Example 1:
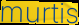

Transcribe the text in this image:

murtis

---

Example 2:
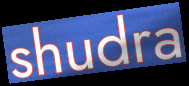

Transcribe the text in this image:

shudra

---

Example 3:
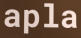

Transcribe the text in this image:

apla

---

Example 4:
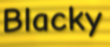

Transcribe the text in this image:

Blacky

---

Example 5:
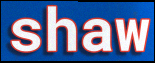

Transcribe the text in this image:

shaw